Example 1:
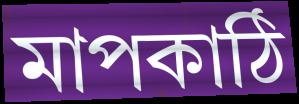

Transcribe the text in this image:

মাপকাঠি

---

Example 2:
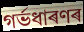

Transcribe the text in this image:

গৰ্ভধাৰণৰ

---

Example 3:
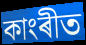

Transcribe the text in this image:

কাংৰীত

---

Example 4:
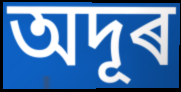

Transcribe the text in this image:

অদূৰ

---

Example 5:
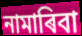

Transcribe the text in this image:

নামাৰিবা